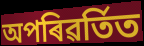
অপৰিৱৰ্তিত